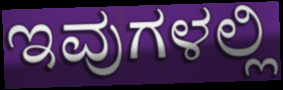
ಇವುಗಳಲ್ಲಿ